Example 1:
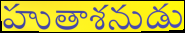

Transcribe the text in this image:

హుతాశనుడు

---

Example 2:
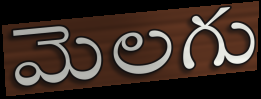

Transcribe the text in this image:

మెలగు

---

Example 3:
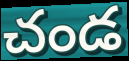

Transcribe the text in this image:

చండ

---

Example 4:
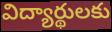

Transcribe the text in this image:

విద్యార్థులకు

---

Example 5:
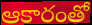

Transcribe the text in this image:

ఆకారంతో